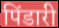
पिंडारी